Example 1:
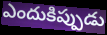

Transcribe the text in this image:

ఎందుకిప్పుడు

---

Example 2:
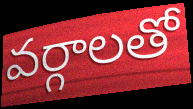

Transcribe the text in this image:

వర్గాలతో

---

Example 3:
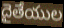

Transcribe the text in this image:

దైతేయుల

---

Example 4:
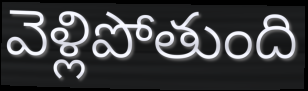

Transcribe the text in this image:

వెళ్లిపోతుంది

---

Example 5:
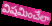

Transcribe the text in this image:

విషమించేలా